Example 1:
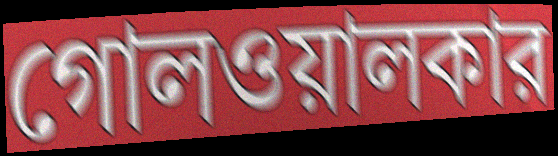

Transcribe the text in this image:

গোলওয়ালকার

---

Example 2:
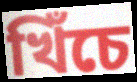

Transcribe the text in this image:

খিঁচে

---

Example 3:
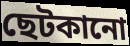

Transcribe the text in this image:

ছেটকানো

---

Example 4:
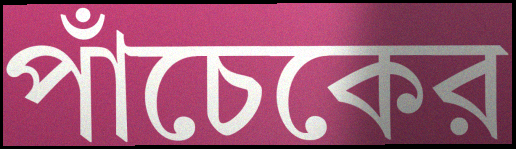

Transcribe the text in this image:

পাঁচেকের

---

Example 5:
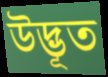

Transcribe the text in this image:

উদ্ভূত